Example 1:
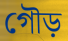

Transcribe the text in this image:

গৌড়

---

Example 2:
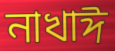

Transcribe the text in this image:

নাখাঈ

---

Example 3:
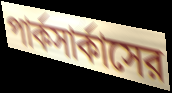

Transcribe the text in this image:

পার্কসার্কাসের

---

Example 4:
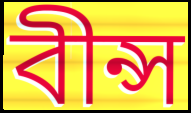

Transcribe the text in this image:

বীন্স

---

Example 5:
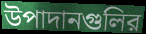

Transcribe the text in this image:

উপাদানগুলির